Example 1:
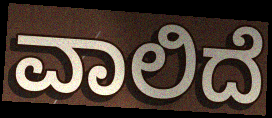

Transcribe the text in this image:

ವಾಲಿದೆ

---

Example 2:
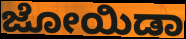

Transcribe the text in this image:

ಜೋಯಿಡಾ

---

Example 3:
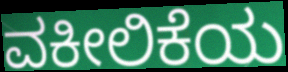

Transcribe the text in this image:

ವಕೀಲಿಕೆಯ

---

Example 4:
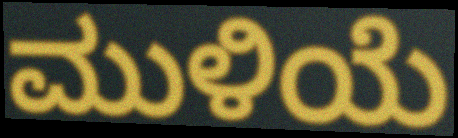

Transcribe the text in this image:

ಮುಳಿಯೆ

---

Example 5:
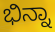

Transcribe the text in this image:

ಭಿನ್ನಾ